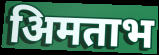
अिमताभ